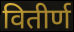
वितीर्ण